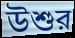
উশুর